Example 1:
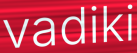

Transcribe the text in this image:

vadiki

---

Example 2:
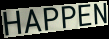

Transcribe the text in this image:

HAPPEN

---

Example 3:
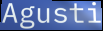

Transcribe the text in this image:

Agusti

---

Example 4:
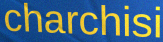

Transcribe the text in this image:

charchisi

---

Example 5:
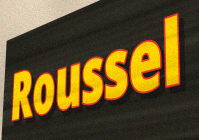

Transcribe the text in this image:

Roussel